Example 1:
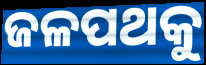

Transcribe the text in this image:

ଜଳପଥକୁ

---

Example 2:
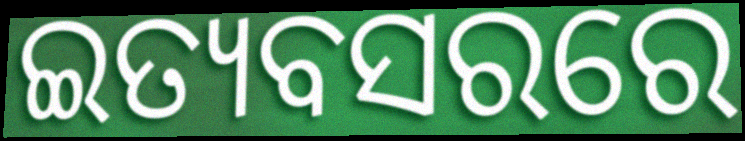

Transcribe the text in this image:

ଇତ୍ୟବସରରେ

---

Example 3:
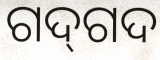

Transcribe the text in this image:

ଗଦ୍‍ଗଦ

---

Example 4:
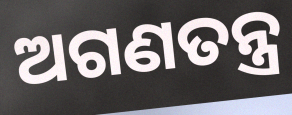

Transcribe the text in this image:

ଅଗଣତନ୍ତ୍ର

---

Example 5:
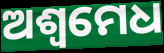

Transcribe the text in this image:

ଅଶ୍ବମେଧ